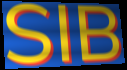
SIB